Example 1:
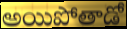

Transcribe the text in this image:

అయిపోతాడో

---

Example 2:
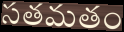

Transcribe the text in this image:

సతమతం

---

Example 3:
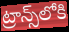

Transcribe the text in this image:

ట్రాన్స్‌లోకి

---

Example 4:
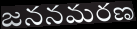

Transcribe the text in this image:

జననమరణ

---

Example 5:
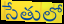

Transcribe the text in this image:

సేతులో